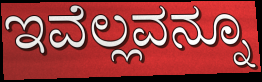
ಇವೆಲ್ಲವನ್ನೂ